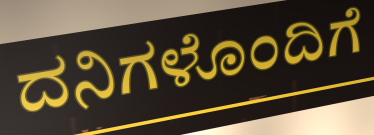
ದನಿಗಳೊಂದಿಗೆ